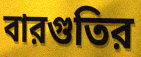
বারগুতির